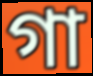
গা